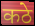
कठे